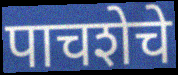
पाचशेचे